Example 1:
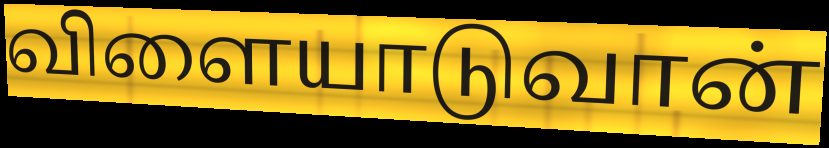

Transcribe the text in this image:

விளையாடுவான்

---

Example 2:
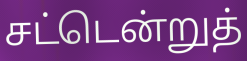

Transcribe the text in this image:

சட்டென்றுத்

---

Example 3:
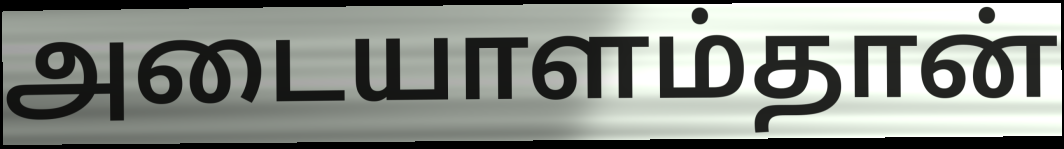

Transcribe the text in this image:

அடையாளம்தான்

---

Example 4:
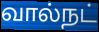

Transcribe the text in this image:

வால்நட்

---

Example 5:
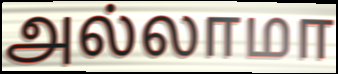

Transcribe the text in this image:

அல்லாமா